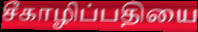
சீகாழிப்பதியை